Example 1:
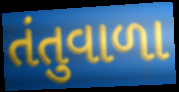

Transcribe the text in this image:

તંતુવાળા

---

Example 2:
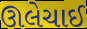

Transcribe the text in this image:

ઊલેચાઈ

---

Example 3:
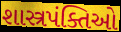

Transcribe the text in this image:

શાસ્ત્રપંક્તિઓ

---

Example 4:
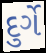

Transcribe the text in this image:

દુર્ગે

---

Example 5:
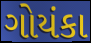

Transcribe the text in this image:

ગોયંકા